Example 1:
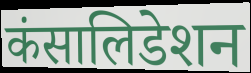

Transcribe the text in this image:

कंसालिडेशन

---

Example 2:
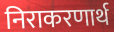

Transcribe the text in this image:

निराकरणार्थ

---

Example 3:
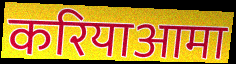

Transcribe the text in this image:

करियाआमा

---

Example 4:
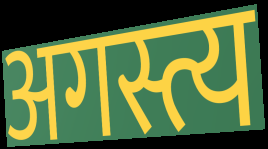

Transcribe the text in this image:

अगस्त्य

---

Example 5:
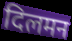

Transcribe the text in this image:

दिलमन